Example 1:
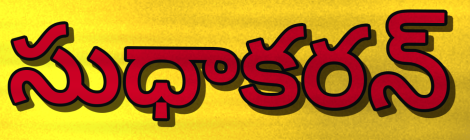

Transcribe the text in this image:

సుధాకరన్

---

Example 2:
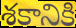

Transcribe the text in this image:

శకానికి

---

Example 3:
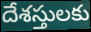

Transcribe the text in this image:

దేశస్తులకు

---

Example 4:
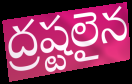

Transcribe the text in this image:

ద్రష్టలైన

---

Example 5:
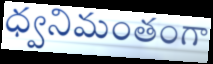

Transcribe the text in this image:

ధ్వనిమంతంగా